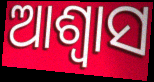
ଆଶ୍ୱାସ